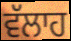
ਵੱਲਾਹ